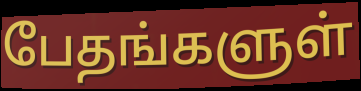
பேதங்களுள்